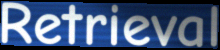
Retrieval